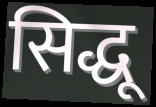
सिद्धू